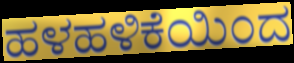
ಹಳಹಳಿಕೆಯಿಂದ